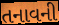
તનાવની